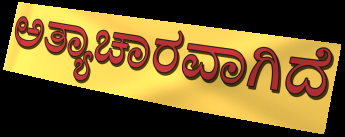
ಅತ್ಯಾಚಾರವಾಗಿದೆ